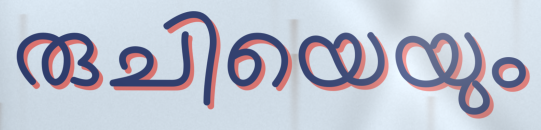
രുചിയെയും